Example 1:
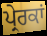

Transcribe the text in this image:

ਪ੍ਰੇਰਕਾਂ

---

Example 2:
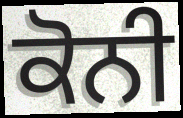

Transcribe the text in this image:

ਕੋਨੀ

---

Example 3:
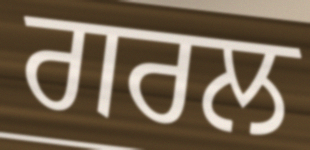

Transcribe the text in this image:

ਗਰਲ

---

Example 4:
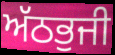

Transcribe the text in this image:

ਅੱਠਭੁਜੀ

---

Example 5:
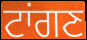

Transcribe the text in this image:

ਟਾਂਗਣ